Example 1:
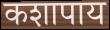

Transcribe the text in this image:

कशापाय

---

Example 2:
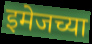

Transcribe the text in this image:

इमेजच्या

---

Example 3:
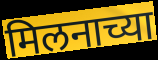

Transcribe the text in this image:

मिलनाच्या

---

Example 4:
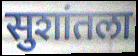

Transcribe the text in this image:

सुशांतला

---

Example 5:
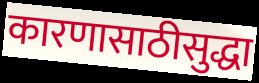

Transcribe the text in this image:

कारणासाठीसुद्धा